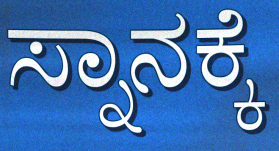
ಸ್ನಾನಕ್ಕೆ